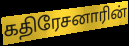
கதிரேசனாரின்